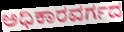
ಅಧಿಕಾರವರ್ಗದ